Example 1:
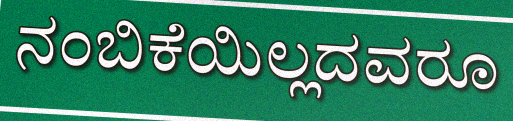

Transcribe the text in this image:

ನಂಬಿಕೆಯಿಲ್ಲದವರೂ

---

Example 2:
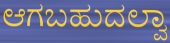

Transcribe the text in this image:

ಆಗಬಹುದಲ್ವಾ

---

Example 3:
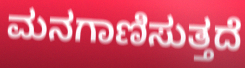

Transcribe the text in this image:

ಮನಗಾಣಿಸುತ್ತದೆ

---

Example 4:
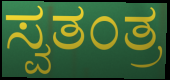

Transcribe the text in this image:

ಸ್ವತಂತ್ರ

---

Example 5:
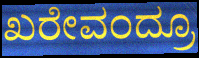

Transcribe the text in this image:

ಖರೇವಂದ್ರೂ